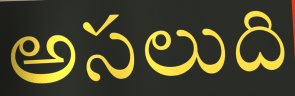
అసలుది